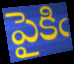
పైకిఁ